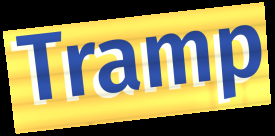
Tramp